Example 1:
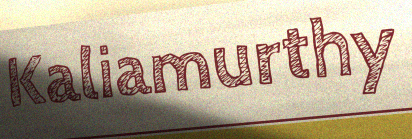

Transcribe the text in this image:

Kaliamurthy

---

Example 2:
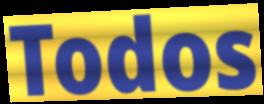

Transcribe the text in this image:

Todos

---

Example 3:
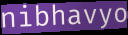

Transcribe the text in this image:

nibhavyo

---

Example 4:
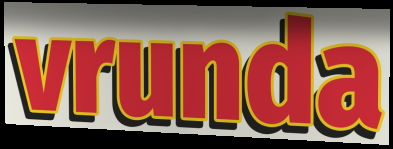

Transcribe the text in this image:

vrunda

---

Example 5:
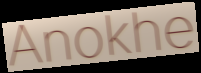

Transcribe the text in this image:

Anokhe